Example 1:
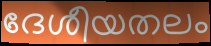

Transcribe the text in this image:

ദേശീയതലം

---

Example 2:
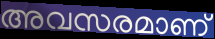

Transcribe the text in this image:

അവസരമാണ്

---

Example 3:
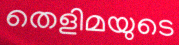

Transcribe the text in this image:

തെളിമയുടെ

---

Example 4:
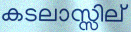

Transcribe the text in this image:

കടലാസ്സില്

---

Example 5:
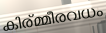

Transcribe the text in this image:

കിര്മ്മീരവധം